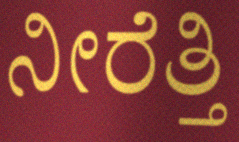
ನೀರೆತ್ತಿ